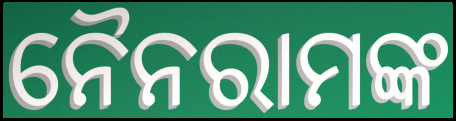
ନୈନରାମଙ୍କ